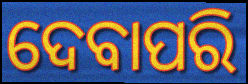
ଦେବାପରି